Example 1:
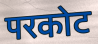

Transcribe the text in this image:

परकोट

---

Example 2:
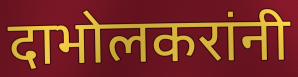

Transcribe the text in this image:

दाभोलकरांनी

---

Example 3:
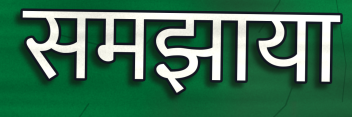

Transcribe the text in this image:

समझाया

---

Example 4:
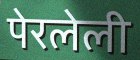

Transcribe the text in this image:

पेरलेली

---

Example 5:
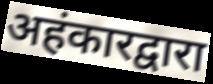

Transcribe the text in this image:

अहंकारद्वारा